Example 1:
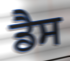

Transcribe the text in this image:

ਡੈਸ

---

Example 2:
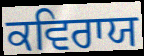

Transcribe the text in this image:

ਕਵਿਰਾਯ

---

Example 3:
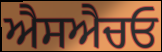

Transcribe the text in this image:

ਐਸਐਚਓ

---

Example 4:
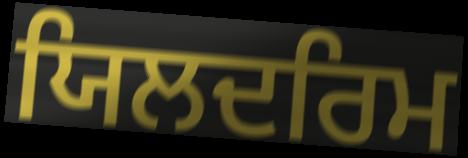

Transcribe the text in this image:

ਯਿਲਦਰਿਮ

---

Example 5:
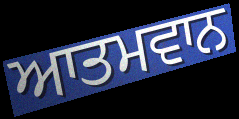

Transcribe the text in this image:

ਆਤਮਵਾਨ